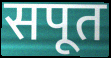
सपूत